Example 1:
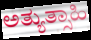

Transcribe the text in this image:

ಅತ್ಯುತ್ಸಾಹಿ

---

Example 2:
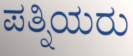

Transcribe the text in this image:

ಪತ್ನಿಯರು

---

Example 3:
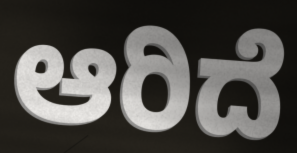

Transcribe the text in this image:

ಆರಿದೆ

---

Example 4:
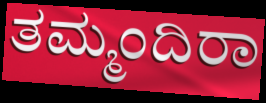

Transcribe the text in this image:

ತಮ್ಮಂದಿರಾ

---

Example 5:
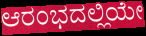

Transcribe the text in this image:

ಆರಂಭದಲ್ಲಿಯೇ